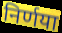
निर्णया